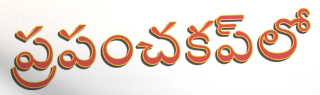
ప్రపంచకప్‌లో